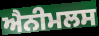
ਐਨੀਮਲਸ